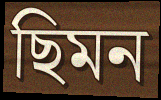
ছিমন